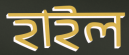
হাইল